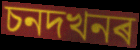
চনদখনৰ